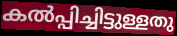
കൽപ്പിച്ചിട്ടുള്ളതു